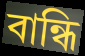
বান্ধি